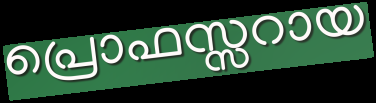
പ്രൊഫസ്സറായ